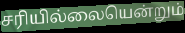
சரியில்லையென்றும்